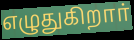
எழுதுகிறார்